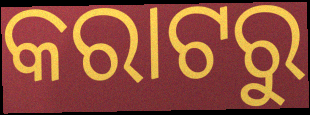
କରାଟରୁ